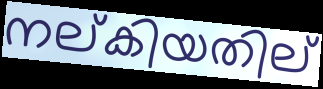
നല്കിയതില്